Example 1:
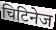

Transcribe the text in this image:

चिटिनेज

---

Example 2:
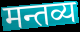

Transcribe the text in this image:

मन्तव्य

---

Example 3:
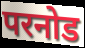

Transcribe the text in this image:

परनोड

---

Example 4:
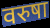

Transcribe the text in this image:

वरुषा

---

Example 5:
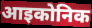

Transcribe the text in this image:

आइकोनिक